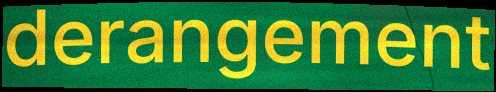
derangement